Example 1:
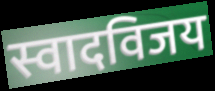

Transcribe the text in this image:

स्वादविजय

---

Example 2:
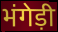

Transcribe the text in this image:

भंगेड़ी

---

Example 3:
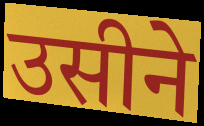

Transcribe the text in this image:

उसीने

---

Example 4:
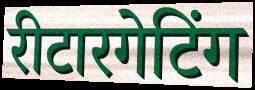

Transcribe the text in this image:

रीटारगेटिंग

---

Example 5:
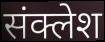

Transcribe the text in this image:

संक्लेश